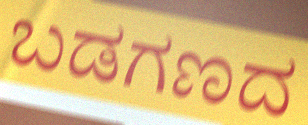
ಬಡಗಣದ